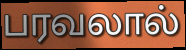
பரவலால்